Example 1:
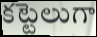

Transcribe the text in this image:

కట్టెలుగా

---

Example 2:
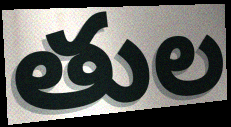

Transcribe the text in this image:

తుల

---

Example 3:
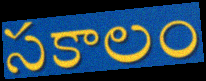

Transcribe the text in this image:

సకాలం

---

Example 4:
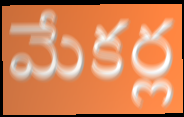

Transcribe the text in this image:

మేకర్ల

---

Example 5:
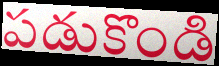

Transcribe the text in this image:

పడుకొండి